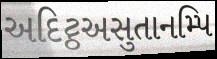
અદિટ્ઠઅસુતાનમ્પિ